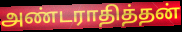
அண்டராதித்தன்